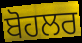
ਬੋਹਲਰ